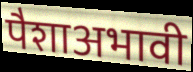
पैशाअभावी